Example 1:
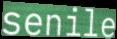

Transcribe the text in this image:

senile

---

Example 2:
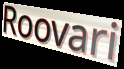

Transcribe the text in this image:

Roovari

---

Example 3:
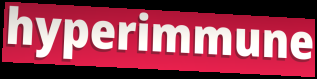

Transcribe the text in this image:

hyperimmune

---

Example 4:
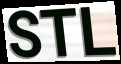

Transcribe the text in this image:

STL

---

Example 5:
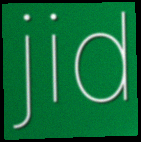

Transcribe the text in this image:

jid